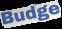
Budge